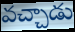
వచ్చాడు